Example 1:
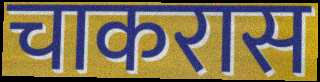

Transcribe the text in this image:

चाकरास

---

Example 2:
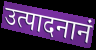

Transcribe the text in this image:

उत्पादनानं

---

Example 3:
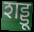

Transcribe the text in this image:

शड्डू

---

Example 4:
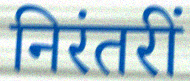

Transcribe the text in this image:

निरंतरीं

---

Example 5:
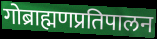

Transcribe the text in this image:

गोब्राह्मणप्रतिपालन